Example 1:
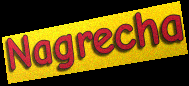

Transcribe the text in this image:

Nagrecha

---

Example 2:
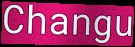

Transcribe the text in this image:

Changu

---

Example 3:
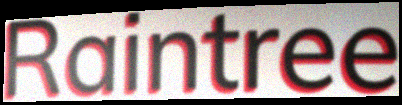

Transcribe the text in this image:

Raintree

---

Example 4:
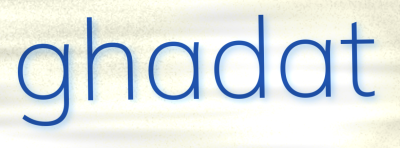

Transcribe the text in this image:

ghadat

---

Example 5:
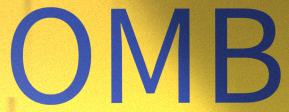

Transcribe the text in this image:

OMB